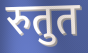
रुतुत